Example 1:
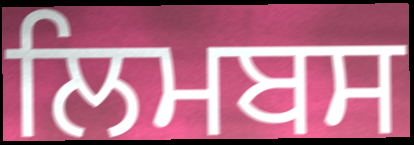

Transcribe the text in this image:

ਲਿਮਬਸ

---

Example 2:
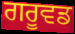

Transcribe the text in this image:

ਗਰੂਵਡ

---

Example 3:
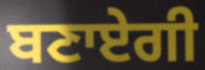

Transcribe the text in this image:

ਬਣਾਏਗੀ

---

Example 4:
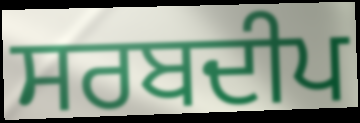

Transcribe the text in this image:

ਸਰਬਦੀਪ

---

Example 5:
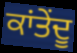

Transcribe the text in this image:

ਕਾਂਤੇਂਦੂ